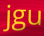
jgu